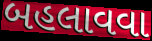
બહલાવવા